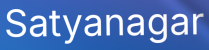
Satyanagar